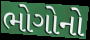
ભોગોનો